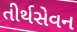
તીર્થસેવન